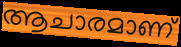
ആചാരമാണ്